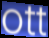
ott